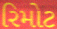
રિમોટ